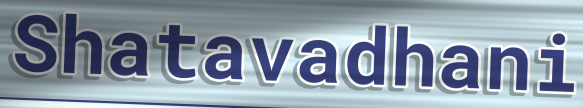
Shatavadhani